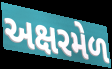
અક્ષરમેળ